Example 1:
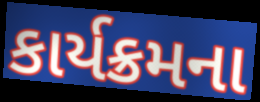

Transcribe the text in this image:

કાર્યક્રમના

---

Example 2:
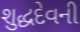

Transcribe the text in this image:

શુદ્ધદેવની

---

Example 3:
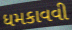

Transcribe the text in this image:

ધમકાવવી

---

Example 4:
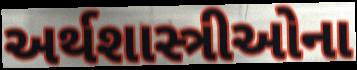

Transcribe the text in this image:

અર્થશાસ્ત્રીઓના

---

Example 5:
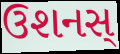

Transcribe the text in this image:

ઉશનસ્